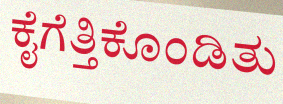
ಕೈಗೆತ್ತಿಕೊಂಡಿತು